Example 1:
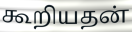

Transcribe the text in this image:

கூறியதன்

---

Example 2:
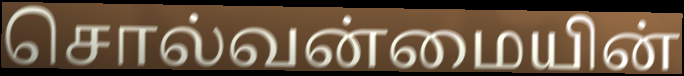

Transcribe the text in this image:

சொல்வன்மையின்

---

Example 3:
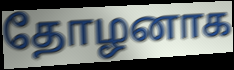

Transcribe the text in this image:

தோழனாக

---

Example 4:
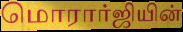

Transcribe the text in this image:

மொரார்ஜியின்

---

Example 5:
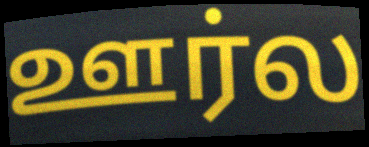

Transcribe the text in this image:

ஊர்ல